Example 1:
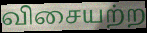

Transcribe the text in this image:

விசையற்ற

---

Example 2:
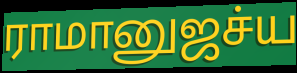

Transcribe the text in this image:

ராமானுஜச்ய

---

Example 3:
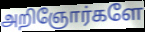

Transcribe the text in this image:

அறிஞோர்களே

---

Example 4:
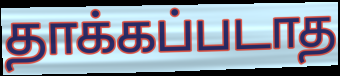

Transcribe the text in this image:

தாக்கப்படாத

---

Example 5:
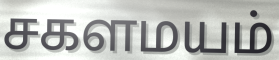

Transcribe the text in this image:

சகளமயம்